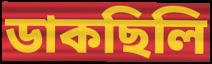
ডাকছিলি